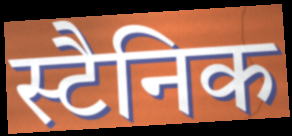
स्टैनिक